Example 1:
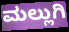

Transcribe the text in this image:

ಮಲ್ಲುಗಿ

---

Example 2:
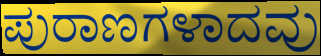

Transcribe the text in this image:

ಪುರಾಣಗಳಾದವು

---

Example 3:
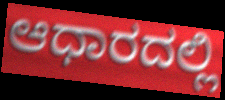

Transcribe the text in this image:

ಆಧಾರದಲ್ಲಿ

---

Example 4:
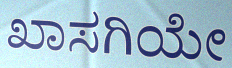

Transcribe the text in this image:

ಖಾಸಗಿಯೇ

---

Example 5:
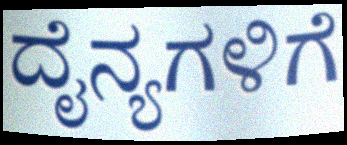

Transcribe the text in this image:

ದೈನ್ಯಗಳಿಗೆ